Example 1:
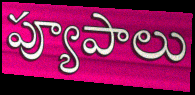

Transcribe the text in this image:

ప్యూపాలు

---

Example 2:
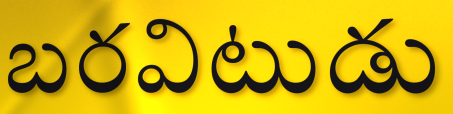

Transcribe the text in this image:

బరవిటుడు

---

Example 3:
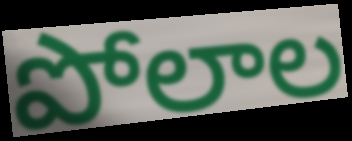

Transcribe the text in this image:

పోలాల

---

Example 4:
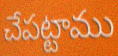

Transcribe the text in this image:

చేపట్టాము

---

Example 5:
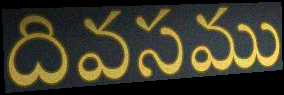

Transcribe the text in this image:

దివసము